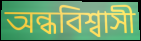
অন্ধবিশ্বাসী